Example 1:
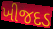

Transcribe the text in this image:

ખીજદડ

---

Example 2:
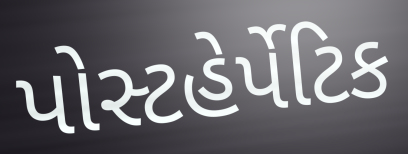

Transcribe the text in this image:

પોસ્ટહેર્પેટિક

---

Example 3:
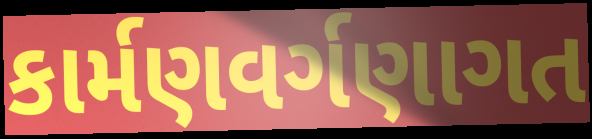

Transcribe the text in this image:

કાર્મણવર્ગણાગત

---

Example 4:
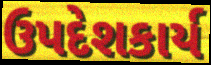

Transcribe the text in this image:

ઉપદેશકાર્ય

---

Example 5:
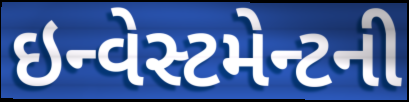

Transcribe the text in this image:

ઇન્વેસ્ટમેન્ટની